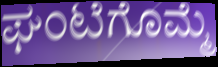
ಘಂಟೆಗೊಮ್ಮೆ